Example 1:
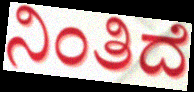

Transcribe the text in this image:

ನಿಂತಿದೆ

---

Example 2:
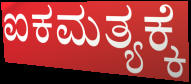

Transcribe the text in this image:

ಐಕಮತ್ಯಕ್ಕೆ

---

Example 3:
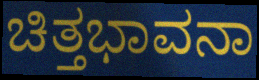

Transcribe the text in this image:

ಚಿತ್ತಭಾವನಾ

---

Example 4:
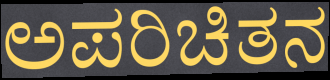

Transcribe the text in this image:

ಅಪರಿಚಿತನ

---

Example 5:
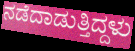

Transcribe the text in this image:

ನಡೆದಾಡುತ್ತಿದ್ದಳು